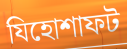
যিহোশাফট